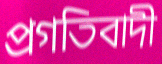
প্রগতিবাদী